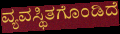
ವ್ಯವಸ್ಥಿತಗೊಂಡಿದೆ